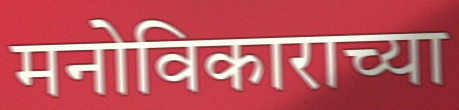
मनोविकाराच्या